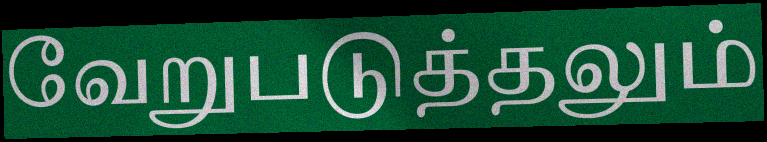
வேறுபடுத்தலும்